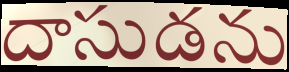
దాసుడను